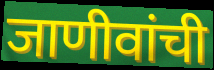
जाणीवांची